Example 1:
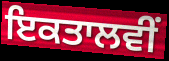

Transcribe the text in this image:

ਇਕਤਾਲਵੀਂ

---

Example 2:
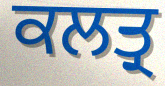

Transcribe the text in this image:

ਕਲਤ੍ਰ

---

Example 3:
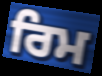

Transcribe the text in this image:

ਰਿਮ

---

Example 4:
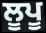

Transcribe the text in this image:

ਲੂਪੂ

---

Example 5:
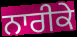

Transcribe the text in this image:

ਨਾਰੀਕੇ